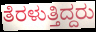
ತೆರಳುತ್ತಿದ್ದರು